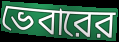
ভেবারের